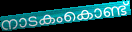
നാടകംകൊണ്ട്